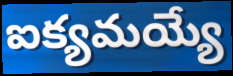
ఐక్యమయ్యే